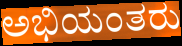
ಅಭಿಯಂತರು